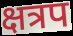
क्षत्रप